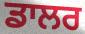
ਡਾਲਰ